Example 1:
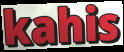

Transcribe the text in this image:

kahis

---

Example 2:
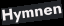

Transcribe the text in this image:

Hymnen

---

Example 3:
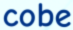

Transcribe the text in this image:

cobe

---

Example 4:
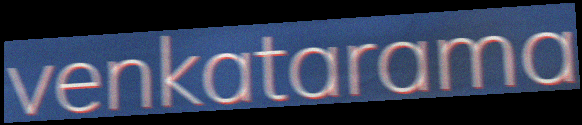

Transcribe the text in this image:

venkatarama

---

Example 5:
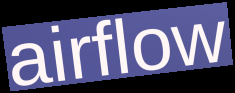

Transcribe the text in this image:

airflow